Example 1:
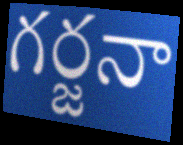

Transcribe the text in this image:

గర్జనా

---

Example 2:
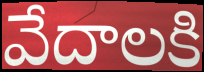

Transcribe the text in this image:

వేదాలకి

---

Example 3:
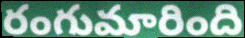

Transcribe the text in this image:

రంగుమారింది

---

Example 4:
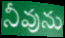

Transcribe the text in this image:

నీవును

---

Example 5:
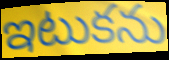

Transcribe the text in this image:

ఇటుకను